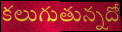
కలుగుతున్నదో